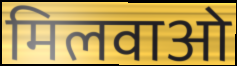
मिलवाओ